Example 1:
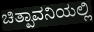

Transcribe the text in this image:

ಚಿತ್ಪಾವನಿಯಲ್ಲಿ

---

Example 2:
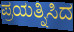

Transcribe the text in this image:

ಪ್ರಯತ್ನಿಸಿದ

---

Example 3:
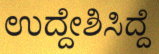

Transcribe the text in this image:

ಉದ್ದೇಶಿಸಿದ್ದೆ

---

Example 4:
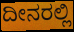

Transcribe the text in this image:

ದೀನರಲ್ಲಿ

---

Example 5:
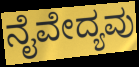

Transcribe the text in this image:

ನೈವೇದ್ಯವು